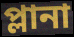
প্লানা